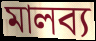
মালব্য